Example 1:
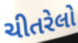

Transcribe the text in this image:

ચીતરેલો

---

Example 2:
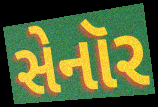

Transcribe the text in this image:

સેનૉર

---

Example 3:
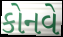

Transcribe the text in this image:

કોનવે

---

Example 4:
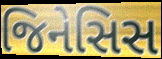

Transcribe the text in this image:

જિનેસિસ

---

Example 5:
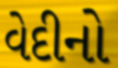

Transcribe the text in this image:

વેદીનો